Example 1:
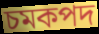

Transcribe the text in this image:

চমকপদ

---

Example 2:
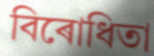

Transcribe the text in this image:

বিৰোধিতা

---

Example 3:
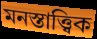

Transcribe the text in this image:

মনস্তাত্ত্বিক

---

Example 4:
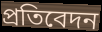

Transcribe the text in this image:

প্ৰতিবেদন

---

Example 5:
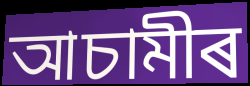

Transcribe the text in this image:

আচামীৰ